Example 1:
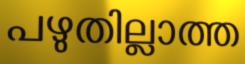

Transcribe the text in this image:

പഴുതില്ലാത്ത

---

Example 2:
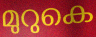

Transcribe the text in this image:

മുറുകെ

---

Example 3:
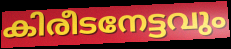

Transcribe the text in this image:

കിരീടനേട്ടവും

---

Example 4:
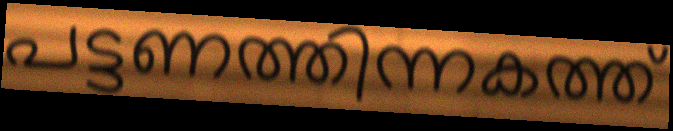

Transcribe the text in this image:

പട്ടണത്തിന്നകത്ത്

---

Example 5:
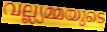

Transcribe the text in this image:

വല്ല്യമ്മയുടെ